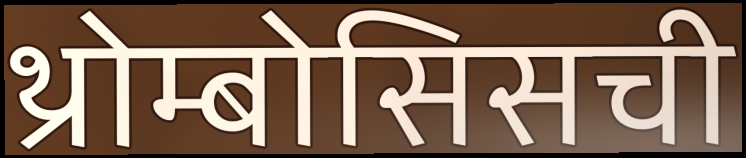
थ्रोम्बोसिसची